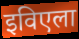
इविएला